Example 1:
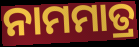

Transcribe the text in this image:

ନାମମାତ୍ର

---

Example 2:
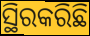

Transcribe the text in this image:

ସ୍ଥିରକରିଛି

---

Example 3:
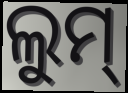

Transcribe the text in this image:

ଲୁମ୍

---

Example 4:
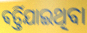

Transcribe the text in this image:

ବର୍ତ୍ତିଯାଇଥିବା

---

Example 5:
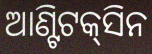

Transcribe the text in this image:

ଆଣ୍ଟିଟକ୍‌ସିନ